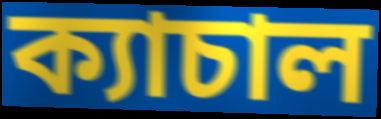
ক্যাচাল